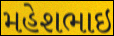
મહેશભાઇ